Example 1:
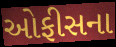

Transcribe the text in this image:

ઓફીસના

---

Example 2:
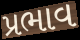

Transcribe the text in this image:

પ્રભાવ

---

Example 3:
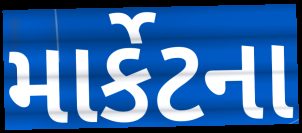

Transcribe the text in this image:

માર્કેટના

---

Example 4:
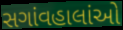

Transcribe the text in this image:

સગાંવહાલાંઓ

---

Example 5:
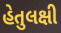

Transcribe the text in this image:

હેતુલક્ષી